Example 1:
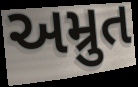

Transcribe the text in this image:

અમ્રુત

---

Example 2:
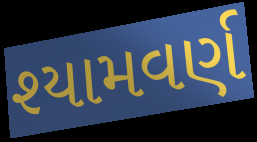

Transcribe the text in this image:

શ્યામવર્ણ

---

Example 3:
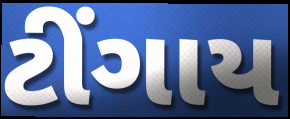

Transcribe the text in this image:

ટીંગાય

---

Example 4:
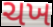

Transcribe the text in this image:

ચખ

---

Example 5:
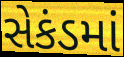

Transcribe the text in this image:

સેકંડમાં